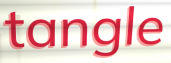
tangle